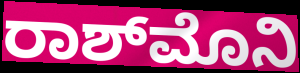
ರಾಶ್‌ಮೊನಿ